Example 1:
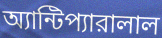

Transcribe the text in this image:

অ্যান্টিপ্যারালাল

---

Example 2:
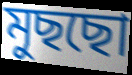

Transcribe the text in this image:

মুছছো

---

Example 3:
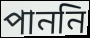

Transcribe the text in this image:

পাননি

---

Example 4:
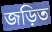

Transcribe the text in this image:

জড়িত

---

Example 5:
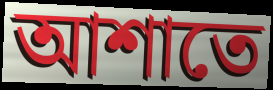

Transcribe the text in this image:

আশাতে